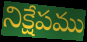
నిక్షేపము